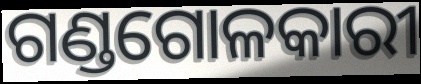
ଗଣ୍ଡଗୋଳକାରୀ